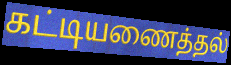
கட்டியணைத்தல்